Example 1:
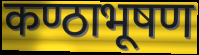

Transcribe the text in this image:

कण्ठाभूषण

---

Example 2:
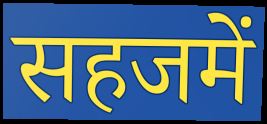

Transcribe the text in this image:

सहजमें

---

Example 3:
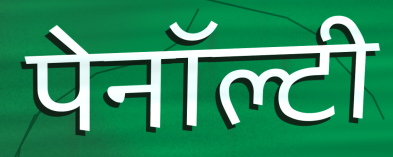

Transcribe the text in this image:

पेनॉल्टी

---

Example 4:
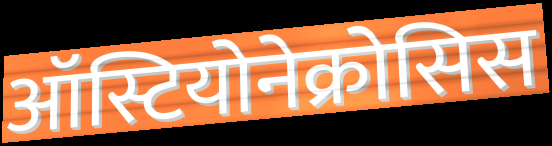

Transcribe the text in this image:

ऑस्टियोनेक्रोसिस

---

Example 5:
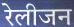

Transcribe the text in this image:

रेलीजन